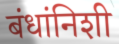
बंधांनिशी